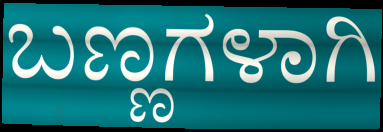
ಬಣ್ಣಗಳಾಗಿ